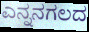
ಎನ್ನನಗಲದ